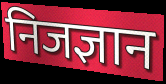
निजज्ञान